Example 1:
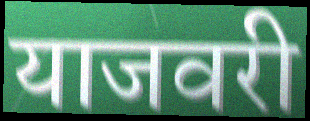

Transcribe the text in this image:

याजवरी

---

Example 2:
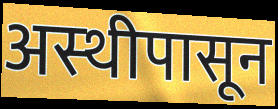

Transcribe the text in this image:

अस्थीपासून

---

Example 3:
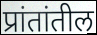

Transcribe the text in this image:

प्रांतांतील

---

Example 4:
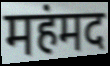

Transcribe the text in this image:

महंमद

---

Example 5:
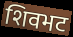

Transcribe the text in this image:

शिवभट